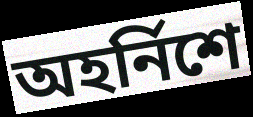
অহৰ্নিশে